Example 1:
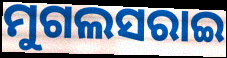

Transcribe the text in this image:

ମୁଗଲସରାଇ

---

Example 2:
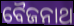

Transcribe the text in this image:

ବୈଜନାଥ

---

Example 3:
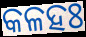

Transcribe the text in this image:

କଳହଃ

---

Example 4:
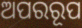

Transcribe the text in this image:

ଅପରରୂପ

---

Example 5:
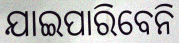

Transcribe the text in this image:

ଯାଇପାରିବେନି